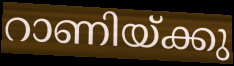
റാണിയ്ക്കു